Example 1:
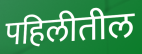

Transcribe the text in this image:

पहिलीतील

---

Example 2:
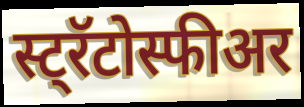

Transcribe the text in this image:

स्ट्रॅटोस्फीअर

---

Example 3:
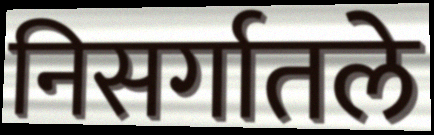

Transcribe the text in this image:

निसर्गातले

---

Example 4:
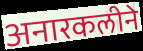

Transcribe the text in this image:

अनारकलीने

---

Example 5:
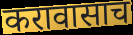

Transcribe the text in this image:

करावासाच